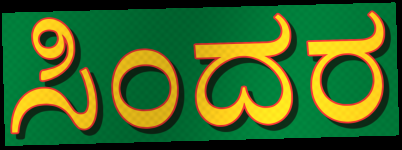
ಸಿಂದರ